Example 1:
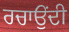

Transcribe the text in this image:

ਰਚਾਉਂਦੀ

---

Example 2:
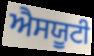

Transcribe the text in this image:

ਐਸਯੂਟੀ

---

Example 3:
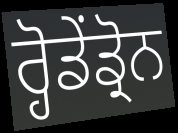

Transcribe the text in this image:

ਰ੍ਹੋਡੇਂਡ੍ਰੋਨ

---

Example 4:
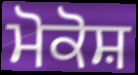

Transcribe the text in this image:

ਮੋਕੋਸ਼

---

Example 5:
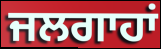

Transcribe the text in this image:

ਜਲਗਾਹਾਂ